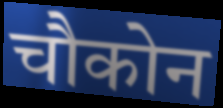
चौकोन